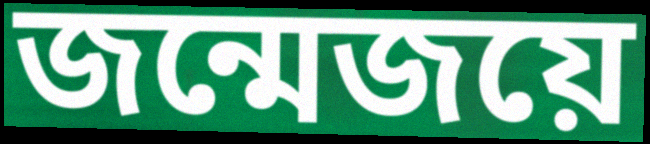
জন্মেজয়ে